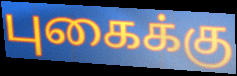
புகைக்கு